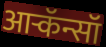
आर्‍कॅन्सॉ